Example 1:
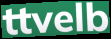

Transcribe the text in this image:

ttvelb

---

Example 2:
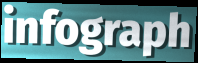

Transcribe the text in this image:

infograph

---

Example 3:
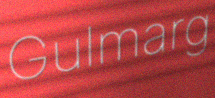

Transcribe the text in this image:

Gulmarg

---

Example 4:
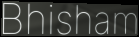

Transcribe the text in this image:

Bhisham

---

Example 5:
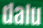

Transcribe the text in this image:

dalu